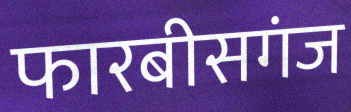
फारबीसगंज